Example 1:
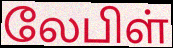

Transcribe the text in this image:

லேபிள்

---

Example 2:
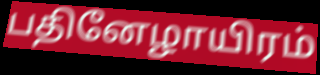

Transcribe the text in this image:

பதினேழாயிரம்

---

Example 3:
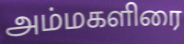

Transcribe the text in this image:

அம்மகளிரை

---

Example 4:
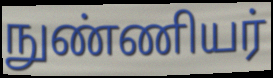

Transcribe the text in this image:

நுண்ணியர்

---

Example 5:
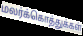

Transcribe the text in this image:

மலர்க்கொத்துக்கள்